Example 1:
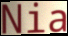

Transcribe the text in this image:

Nia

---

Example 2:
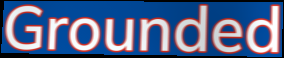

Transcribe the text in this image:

Grounded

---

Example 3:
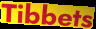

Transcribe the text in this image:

Tibbets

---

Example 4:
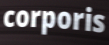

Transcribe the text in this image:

corporis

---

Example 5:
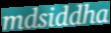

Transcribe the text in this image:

mdsiddha